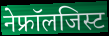
नेफ्रॉलजिस्ट